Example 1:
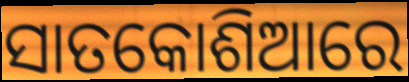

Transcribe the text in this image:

ସାତକୋଶିଆରେ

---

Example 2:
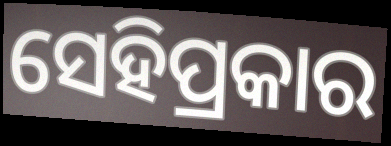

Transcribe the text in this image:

ସେହିପ୍ରକାର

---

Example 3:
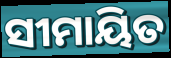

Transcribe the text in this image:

ସୀମାୟିତ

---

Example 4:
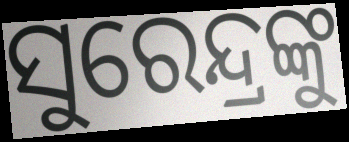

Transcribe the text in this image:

ସୁରେନ୍ଦ୍ରଙ୍କୁ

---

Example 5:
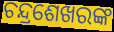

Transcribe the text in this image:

ଚନ୍ଦ୍ରଶେଖରଙ୍କ